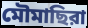
মৌমাছিরা